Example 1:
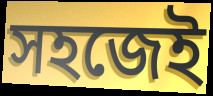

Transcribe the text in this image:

সহজেই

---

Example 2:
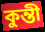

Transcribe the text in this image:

কুন্তী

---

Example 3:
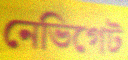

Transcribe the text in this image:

নেভিগেট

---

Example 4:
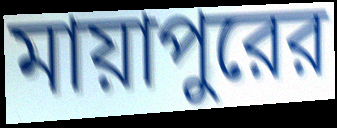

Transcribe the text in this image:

মায়াপুরের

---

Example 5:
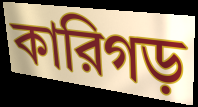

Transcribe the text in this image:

কারিগড়